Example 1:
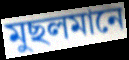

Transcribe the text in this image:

মুছলমানে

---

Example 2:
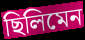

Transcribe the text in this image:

ছিলিমেন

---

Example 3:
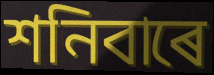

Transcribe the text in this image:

শনিবাৰে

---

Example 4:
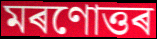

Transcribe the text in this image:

মৰণোত্তৰ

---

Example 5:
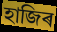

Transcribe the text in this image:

হাজিৰ